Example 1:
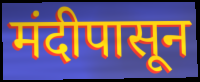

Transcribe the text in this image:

मंदीपासून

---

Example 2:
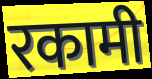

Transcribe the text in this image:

रकामी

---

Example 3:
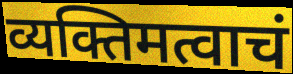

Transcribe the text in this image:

व्यक्तिमत्वाचं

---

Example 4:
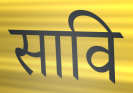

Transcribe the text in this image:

सावि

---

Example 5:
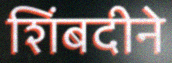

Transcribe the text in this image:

शिंबदीने